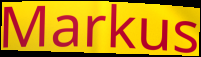
Markus